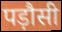
पड़ौसी